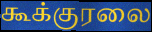
கூக்குரலை